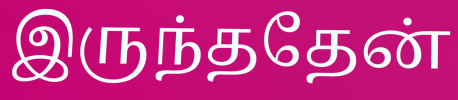
இருந்ததேன்